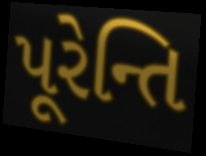
પૂરેન્તિ